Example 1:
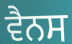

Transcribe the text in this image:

ਵੈਨਸ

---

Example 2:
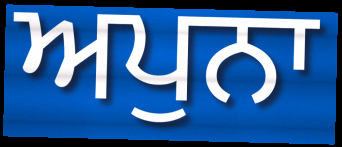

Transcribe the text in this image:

ਅਪੁਨਾ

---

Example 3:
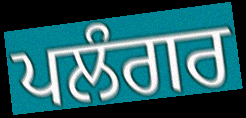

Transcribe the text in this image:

ਪਲੰਗਰ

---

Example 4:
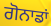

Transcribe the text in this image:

ਗੋਨਾਡਾਂ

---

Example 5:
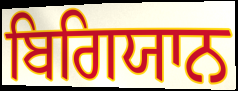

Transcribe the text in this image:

ਬਿਗਿਯਾਨ